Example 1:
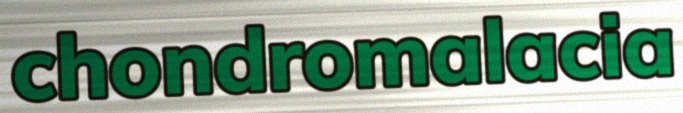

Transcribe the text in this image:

chondromalacia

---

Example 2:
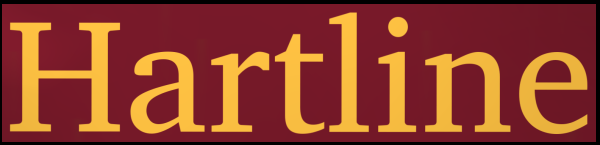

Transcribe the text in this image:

Hartline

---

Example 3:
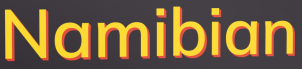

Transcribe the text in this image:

Namibian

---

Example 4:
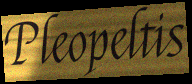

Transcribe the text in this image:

Pleopeltis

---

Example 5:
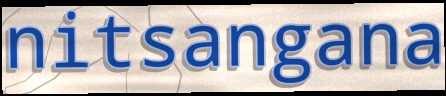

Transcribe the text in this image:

nitsangana